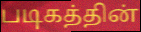
படிகத்தின்